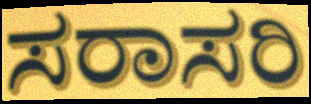
ಸರಾಸರಿ